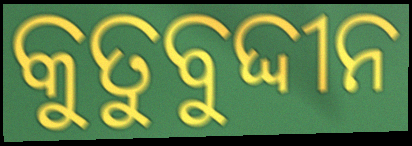
କୁତୁବୁଦ୍ଦୀନ